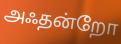
அஃதன்றோ